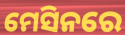
ମେସିନରେ